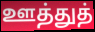
ஊத்துத்